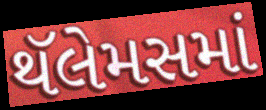
થૅલેમસમાં